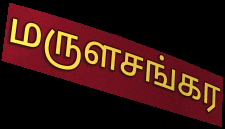
மருளசங்கர